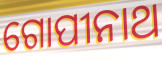
ଗୋପୀନାଥ